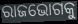
ରାଜଭୋଗକୁ